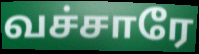
வச்சாரே